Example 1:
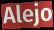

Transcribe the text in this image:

Alejo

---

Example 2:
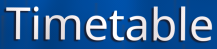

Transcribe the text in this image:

Timetable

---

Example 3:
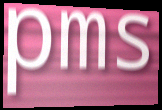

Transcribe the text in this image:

pms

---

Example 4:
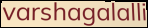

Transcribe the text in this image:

varshagalalli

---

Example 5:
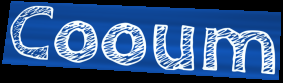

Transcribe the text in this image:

Cooum